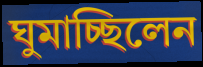
ঘুমাচ্ছিলেন